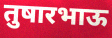
तुषारभाऊ